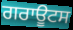
ਗਰਾਊਟਸ